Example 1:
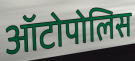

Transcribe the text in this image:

ऑटोपोलिस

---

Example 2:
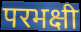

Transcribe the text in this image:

परभक्षी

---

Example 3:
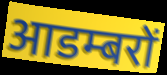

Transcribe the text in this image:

आडम्बरों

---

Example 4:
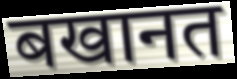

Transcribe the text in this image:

बखानत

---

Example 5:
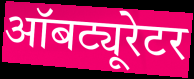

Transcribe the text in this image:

ऑबट्यूरेटर